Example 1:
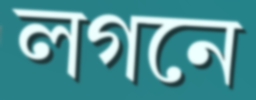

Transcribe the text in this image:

লগনে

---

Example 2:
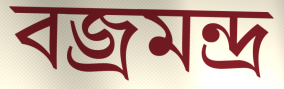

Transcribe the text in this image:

বজ্রমন্দ্র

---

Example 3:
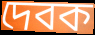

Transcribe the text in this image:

দেবক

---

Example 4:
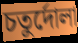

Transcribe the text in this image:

চতুর্দোলা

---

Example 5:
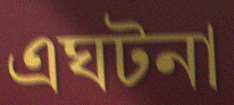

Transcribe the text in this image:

এঘটনা